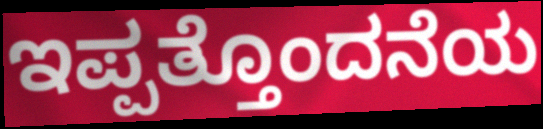
ಇಪ್ಪತ್ತೊಂದನೆಯ